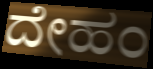
ದೇಹಂ